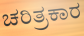
ಚರಿತ್ರಕಾರ